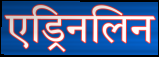
एड्रिनलिन